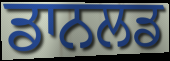
ਡਾਨਲਡ